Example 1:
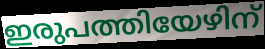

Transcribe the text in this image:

ഇരുപത്തിയേഴിന്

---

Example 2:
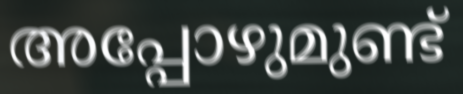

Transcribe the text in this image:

അപ്പോഴുമുണ്ട്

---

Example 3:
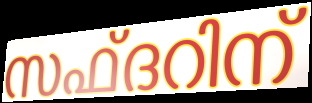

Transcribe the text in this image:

സഫ്ദറിന്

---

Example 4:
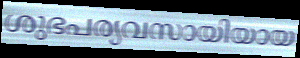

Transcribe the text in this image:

ശുഭപര്യവസായിയായ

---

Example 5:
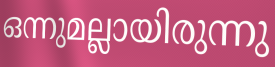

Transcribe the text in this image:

ഒന്നുമല്ലായിരുന്നു